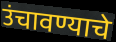
उंचावण्याचे